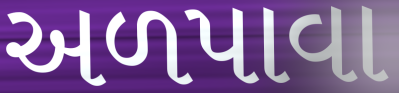
અળપાવા